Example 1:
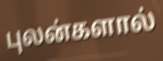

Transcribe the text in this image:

புலன்களால்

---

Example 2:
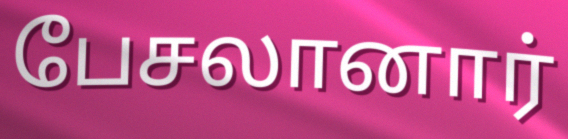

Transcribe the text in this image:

பேசலானார்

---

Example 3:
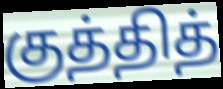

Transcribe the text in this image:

குத்தித்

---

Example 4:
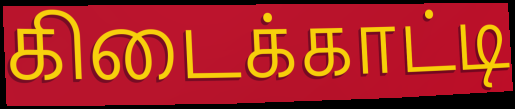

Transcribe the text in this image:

கிடைக்காட்டி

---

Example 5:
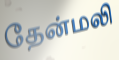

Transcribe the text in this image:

தேன்மலி